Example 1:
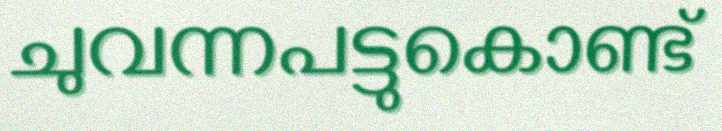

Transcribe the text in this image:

ചുവന്നപട്ടുകൊണ്ട്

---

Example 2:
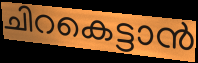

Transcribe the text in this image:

ചിറകെട്ടാൻ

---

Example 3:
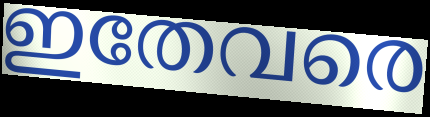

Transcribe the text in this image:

ഇതേവരെ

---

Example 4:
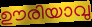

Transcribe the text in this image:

ഊരിയാവു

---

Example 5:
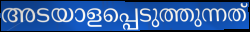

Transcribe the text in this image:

അടയാളപ്പെടുത്തുന്നത്